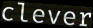
clever